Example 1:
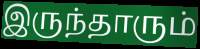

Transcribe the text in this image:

இருந்தாரும்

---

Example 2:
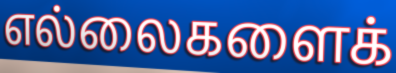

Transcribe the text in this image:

எல்லைகளைக்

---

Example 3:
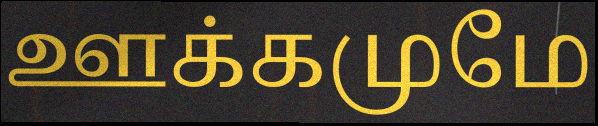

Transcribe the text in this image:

ஊக்கமுமே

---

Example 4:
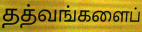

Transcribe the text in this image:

தத்வங்களைப்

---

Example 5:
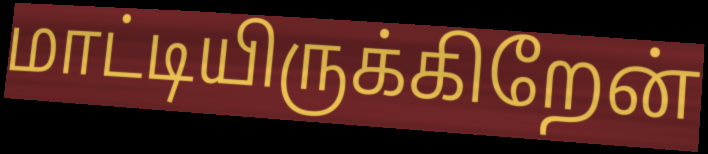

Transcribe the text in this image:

மாட்டியிருக்கிறேன்